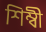
শিম্বী